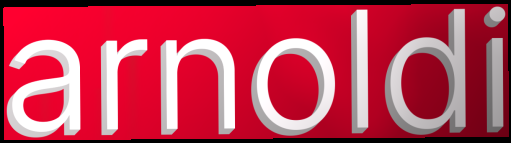
arnoldi